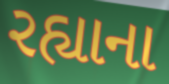
રહ્યાના